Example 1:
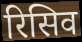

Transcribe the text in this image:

रिसिव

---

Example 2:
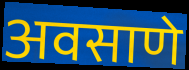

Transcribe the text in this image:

अवसाणे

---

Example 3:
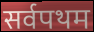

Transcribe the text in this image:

सर्वपथम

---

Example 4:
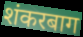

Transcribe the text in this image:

शंकरबाग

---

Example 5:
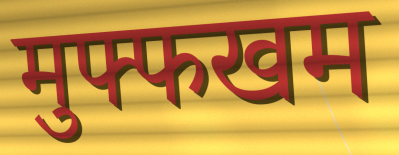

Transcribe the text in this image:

मुफ्फखम